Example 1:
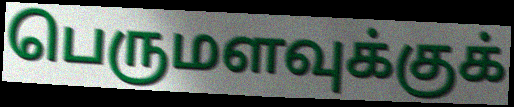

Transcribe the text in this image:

பெருமளவுக்குக்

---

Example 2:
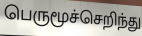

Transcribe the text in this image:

பெருமூச்செறிந்து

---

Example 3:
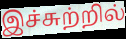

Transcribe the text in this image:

இச்சுற்றில்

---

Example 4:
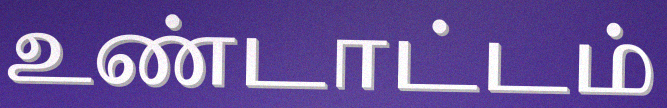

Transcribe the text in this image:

உண்டாட்டம்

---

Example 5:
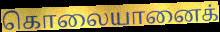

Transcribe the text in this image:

கொலையானைக்